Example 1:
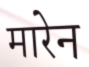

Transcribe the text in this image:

मारेन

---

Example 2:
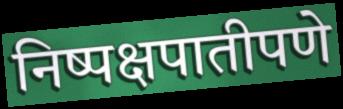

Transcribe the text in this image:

निष्पक्षपातीपणे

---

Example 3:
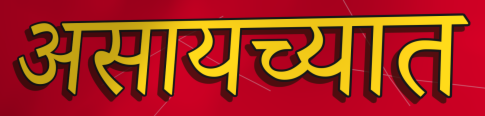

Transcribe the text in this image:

असायच्यात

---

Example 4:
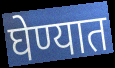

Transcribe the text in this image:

घेण्यात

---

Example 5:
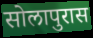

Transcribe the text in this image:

सोलापुरास